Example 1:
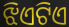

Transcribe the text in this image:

ଝିଏଟିଏ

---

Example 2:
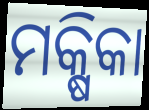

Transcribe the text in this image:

ମକ୍ଷିକା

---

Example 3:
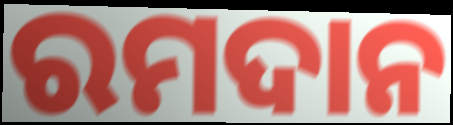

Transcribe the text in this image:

ରମଦାନ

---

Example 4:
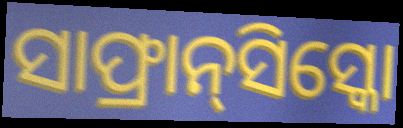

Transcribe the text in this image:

ସାଫ୍ରାନ୍‌ସିସ୍କୋ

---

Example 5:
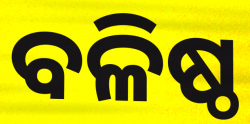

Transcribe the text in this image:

ବଳିଷ୍ଠ